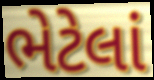
ભેટેલાં